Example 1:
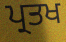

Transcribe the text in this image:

ਪ੍ਰਤਖ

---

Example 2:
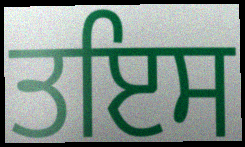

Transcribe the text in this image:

ਤਇਸ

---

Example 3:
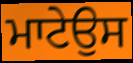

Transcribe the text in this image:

ਮਾਟੇਉਸ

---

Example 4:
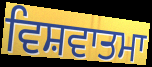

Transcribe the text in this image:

ਵਿਸ਼ਵਾਤਮਾ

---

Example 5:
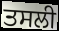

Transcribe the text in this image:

ਤਸਲੀ